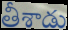
తీశాడు